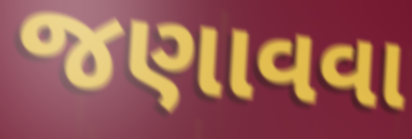
જણાવવા